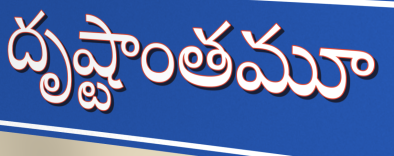
దృష్టాంతమూ